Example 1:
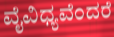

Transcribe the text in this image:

ವೈವಿಧ್ಯವೆಂದರೆ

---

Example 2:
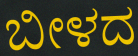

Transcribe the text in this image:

ಬೀಳದ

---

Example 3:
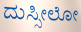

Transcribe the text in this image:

ದುಸ್ಸೀಲೋ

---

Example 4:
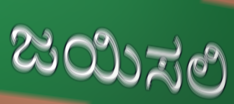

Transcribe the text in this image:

ಜಯಿಸಲಿ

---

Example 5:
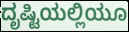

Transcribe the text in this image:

ದೃಷ್ಟಿಯಲ್ಲಿಯೂ